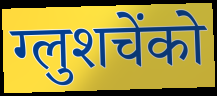
ग्लुशचेंको